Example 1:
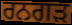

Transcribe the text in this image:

ਰਨਗੜ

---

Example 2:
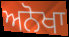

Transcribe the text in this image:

ਅਨੋਖਾ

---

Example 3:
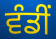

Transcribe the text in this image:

ਵੰਡੀਂ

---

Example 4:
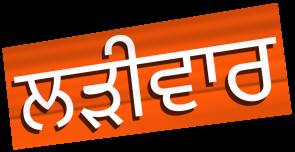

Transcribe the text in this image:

ਲੜੀਵਾਰ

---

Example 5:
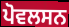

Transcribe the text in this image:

ਪੋਵਲਸਨ